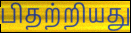
பிதற்றியது